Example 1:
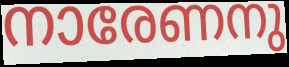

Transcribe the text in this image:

നാരേണനു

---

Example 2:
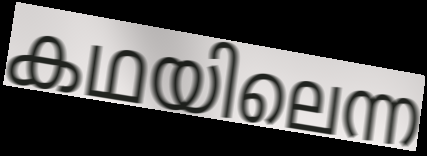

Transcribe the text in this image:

കഥയിലെന്ന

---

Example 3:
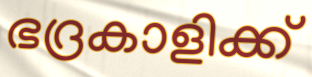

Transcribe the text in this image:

ഭദ്രകാളിക്ക്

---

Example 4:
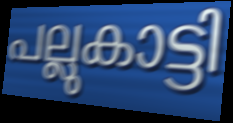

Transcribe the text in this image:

പല്ലുകാട്ടി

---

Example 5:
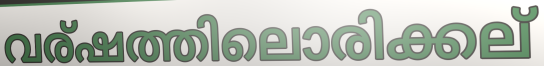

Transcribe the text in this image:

വര്ഷത്തിലൊരിക്കല്